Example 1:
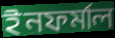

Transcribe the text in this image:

ইনফর্মাল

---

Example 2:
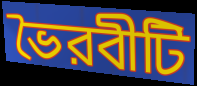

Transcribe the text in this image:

ভৈরবীটি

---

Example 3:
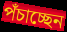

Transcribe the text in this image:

পঁচাচ্ছেন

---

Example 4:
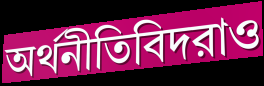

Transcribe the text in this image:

অর্থনীতিবিদরাও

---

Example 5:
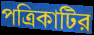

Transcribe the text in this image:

পত্রিকাটির